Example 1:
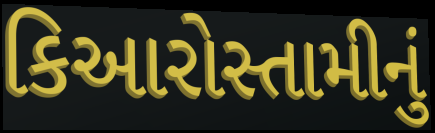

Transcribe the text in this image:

કિઆરોસ્તામીનું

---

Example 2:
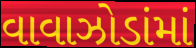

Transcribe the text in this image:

વાવાઝોડાંમાં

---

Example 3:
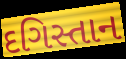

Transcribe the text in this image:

દગિસ્તાન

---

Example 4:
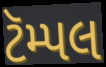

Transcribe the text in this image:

ટૅમ્પલ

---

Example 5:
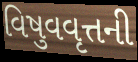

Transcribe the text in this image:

વિષુવવૃત્તની